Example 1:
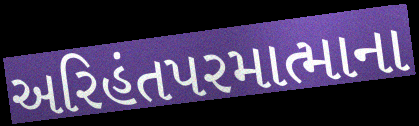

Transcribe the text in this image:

અરિહંતપરમાત્માના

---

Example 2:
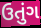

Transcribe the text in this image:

ઉતુંગ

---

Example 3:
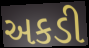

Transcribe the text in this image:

અકડી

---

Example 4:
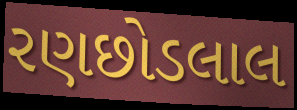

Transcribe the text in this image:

રણછોડલાલ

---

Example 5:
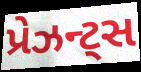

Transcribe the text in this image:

પ્રેઝન્ટ્સ